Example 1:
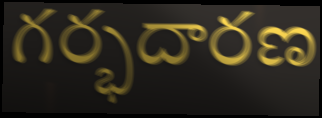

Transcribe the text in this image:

గర్భదారణ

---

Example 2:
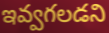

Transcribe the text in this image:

ఇవ్వగలడని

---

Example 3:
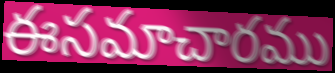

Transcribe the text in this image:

ఈసమాచారము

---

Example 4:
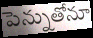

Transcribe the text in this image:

పెన్నుతోనూ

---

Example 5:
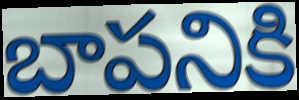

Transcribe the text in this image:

బాపనికి